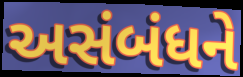
અસંબંધને